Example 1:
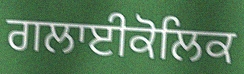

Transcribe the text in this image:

ਗਲਾਈਕੋਲਿਕ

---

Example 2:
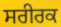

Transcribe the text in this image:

ਸਰੀਰਕ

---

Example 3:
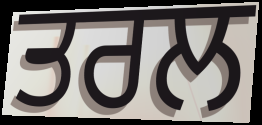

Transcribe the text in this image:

ਤਰਲ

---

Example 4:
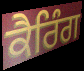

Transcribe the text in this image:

ਕੈਰਿੰਗ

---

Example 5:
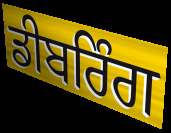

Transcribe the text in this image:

ਡੀਬਰਿੰਗ